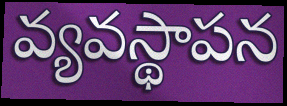
వ్యవస్థాపన